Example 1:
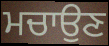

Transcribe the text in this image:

ਮਚਾਉਣ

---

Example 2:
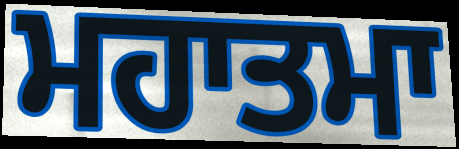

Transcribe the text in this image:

ਮਹਾਤਮਾ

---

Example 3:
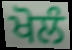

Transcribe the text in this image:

ਖੋਲੰ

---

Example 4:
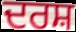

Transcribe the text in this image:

ਦਰਸ਼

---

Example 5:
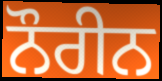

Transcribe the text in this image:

ਨੌਰੀਨ